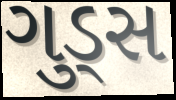
ગુડ્સ